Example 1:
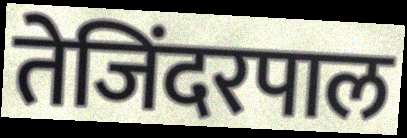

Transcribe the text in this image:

तेजिंदरपाल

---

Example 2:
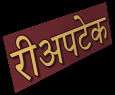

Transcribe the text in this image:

रीअपटेक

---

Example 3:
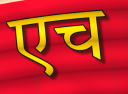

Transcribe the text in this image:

एच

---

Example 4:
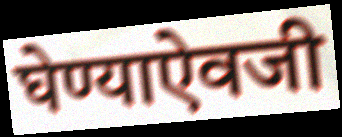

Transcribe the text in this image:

घेण्याऐवजी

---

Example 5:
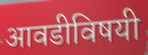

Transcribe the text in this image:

आवडीविषयी